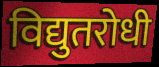
विद्युतरोधी